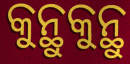
କୁନ୍ଥୁକୁନ୍ଥୁ